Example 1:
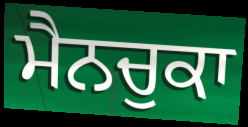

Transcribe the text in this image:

ਮੈਨਚੁਕਾ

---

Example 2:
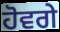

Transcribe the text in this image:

ਹੋਵਗੇ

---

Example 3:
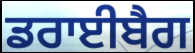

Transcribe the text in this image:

ਡਰਾਈਬੈਗ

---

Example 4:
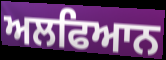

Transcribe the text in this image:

ਅਲਫਿਆਨ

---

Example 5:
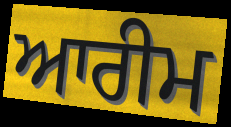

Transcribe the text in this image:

ਆਰੀਮ